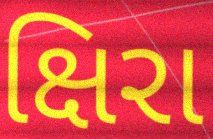
ક્ષિરા